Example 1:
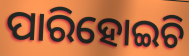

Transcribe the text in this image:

ପାରିହୋଇଚି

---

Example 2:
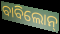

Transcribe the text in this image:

ବାବିଲୋନ୍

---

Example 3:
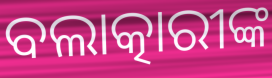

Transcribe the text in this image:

ବଲାତ୍କାରୀଙ୍କ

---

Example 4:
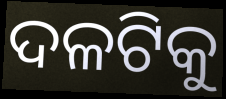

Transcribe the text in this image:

ଦଳଟିକୁ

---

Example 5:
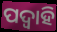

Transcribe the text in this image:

ପଦ୍ଵାହି